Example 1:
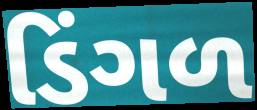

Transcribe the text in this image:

ડિંગળ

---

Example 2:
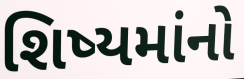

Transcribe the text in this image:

શિષ્યમાંનો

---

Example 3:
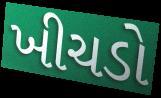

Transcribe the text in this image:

ખીચડો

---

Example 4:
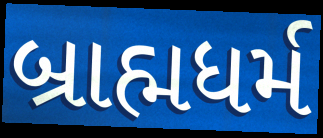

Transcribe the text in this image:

બ્રાહ્મધર્મ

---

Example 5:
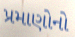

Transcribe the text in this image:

પ્રમાણોનો